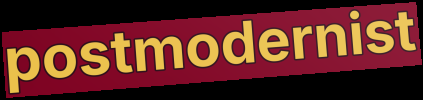
postmodernist